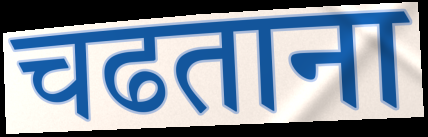
चढताना